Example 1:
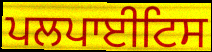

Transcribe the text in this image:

ਪਲਪਾਈਟਿਸ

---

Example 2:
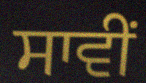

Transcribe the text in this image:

ਸਾਵੀਂ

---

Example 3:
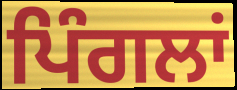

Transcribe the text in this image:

ਪਿੰਗਲਾਂ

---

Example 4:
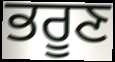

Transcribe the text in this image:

ਭਰੂਣ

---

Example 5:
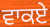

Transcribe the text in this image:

ਵਾਕਏ